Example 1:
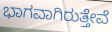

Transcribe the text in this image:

ಭಾಗವಾಗಿರುತ್ತೇವೆ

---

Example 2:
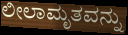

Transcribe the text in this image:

ಲೀಲಾಮೃತವನ್ನು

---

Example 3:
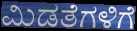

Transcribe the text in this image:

ಮಿಡತೆಗಳಿಗೆ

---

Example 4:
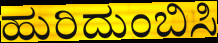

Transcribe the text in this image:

ಹುರಿದುಂಬಿಸಿ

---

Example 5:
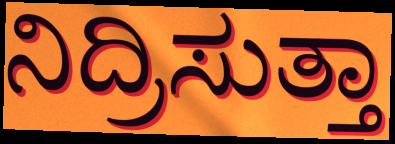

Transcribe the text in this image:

ನಿದ್ರಿಸುತ್ತಾ